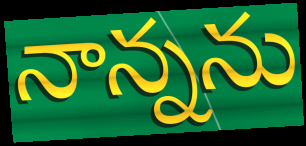
నాన్నను